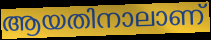
ആയതിനാലാണ്